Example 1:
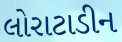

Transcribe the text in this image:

લોરાટાડીન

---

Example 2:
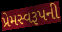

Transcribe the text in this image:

પ્રેમસ્વરૂપની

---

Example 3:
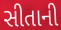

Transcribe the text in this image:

સીતાની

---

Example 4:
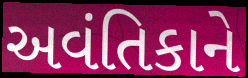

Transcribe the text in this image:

અવંતિકાને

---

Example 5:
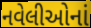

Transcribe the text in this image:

નવેલીઓનાં